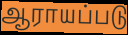
ஆராயப்படு